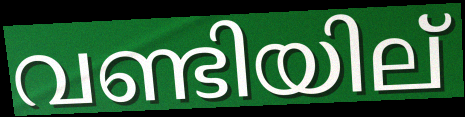
വണ്ടിയില്